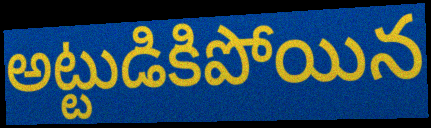
అట్టుడికిపోయిన